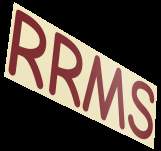
RRMS